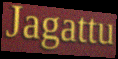
Jagattu